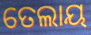
ତେଲାୟ